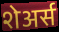
शेअर्स